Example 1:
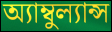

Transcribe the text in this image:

অ্যাম্বুল্যান্স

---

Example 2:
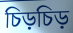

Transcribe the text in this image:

চিড়চিড়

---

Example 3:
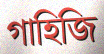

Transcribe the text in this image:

গাহিজি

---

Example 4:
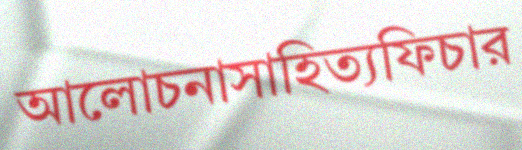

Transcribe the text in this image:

আলোচনাসাহিত্যফিচার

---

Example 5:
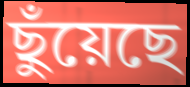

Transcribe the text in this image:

ছুঁয়েছে